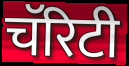
चॅरिटी